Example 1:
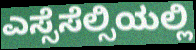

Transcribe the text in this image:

ಎಸ್ಸೆಸೆಲ್ಸಿಯಲ್ಲಿ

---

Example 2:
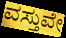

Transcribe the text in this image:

ವಸ್ತುವೇ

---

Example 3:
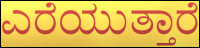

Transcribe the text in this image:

ಎರೆಯುತ್ತಾರೆ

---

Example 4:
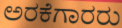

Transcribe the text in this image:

ಅರಕೆಗಾರರು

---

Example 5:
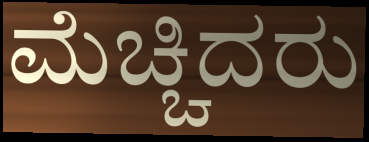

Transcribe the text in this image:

ಮೆಚ್ಚಿದರು